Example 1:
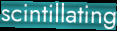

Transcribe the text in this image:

scintillating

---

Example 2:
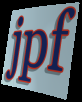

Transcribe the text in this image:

jpf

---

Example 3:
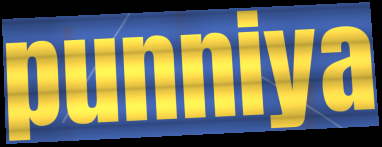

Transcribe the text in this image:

punniya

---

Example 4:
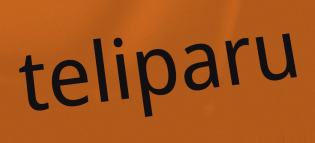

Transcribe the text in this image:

teliparu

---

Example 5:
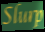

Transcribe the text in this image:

Slurp